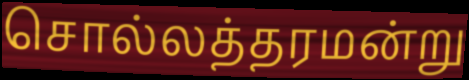
சொல்லத்தரமன்று